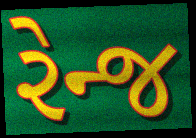
રેન્જ